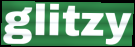
glitzy